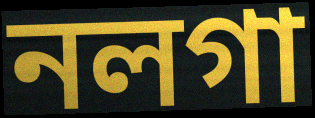
নলগা